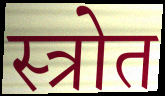
स्त्रोत